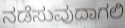
ನಡೆಸುವುದಾಗಲಿ